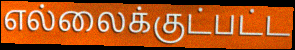
எல்லைக்குட்பட்ட